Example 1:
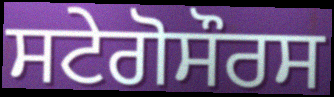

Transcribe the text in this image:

ਸਟੇਗੋਸੌਰਸ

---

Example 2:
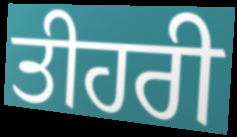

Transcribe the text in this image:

ਤੀਹਰੀ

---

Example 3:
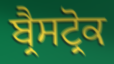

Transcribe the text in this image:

ਬ੍ਰੈਸਟ੍ਰੋਕ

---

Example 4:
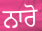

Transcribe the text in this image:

ਨਾਰੋ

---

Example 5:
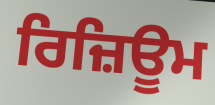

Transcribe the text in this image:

ਰਿਜ਼ਿਊਮ